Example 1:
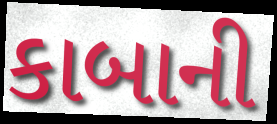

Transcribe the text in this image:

કાબાની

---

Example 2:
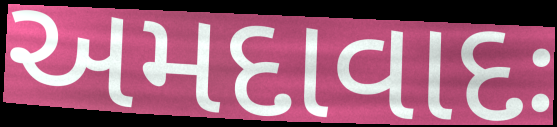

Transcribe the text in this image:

અમદાવાદઃ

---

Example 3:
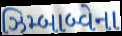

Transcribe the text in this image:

ઝિમ્બાબ્વેના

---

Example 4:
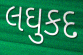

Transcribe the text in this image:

લઘુકદ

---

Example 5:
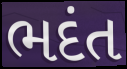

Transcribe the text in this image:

ભદંત